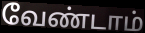
வேண்டாம்